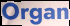
Organ